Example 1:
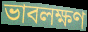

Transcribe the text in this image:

ভাবলক্ষণ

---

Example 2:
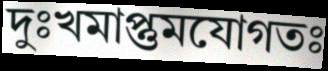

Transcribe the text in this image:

দুঃখমাপ্তুমযোগতঃ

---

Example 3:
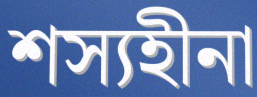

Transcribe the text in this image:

শস্যহীনা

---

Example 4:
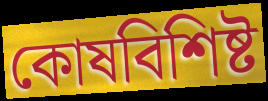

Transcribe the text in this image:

কোষবিশিষ্ট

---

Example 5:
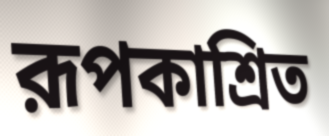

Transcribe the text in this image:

রূপকাশ্রিত